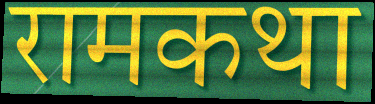
रामकथा